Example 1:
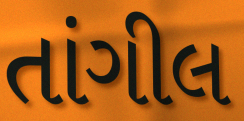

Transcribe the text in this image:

તાંગીલ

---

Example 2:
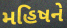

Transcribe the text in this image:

મહિષને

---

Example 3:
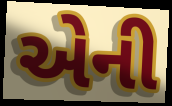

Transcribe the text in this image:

એની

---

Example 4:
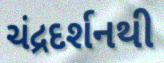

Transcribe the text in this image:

ચંદ્રદર્શનથી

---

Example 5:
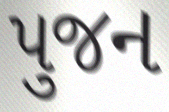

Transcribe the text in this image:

પુજન